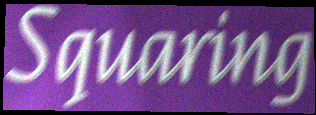
Squaring